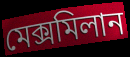
মেক্সমিলান